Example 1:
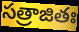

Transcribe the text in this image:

సత్రాజితః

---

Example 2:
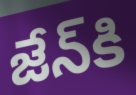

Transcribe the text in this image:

జేన్‌కి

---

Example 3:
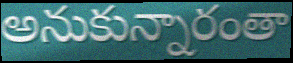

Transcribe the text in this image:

అనుకున్నారంతా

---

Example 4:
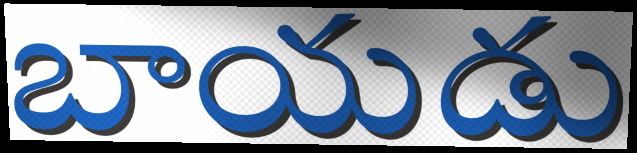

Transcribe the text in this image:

బాయడు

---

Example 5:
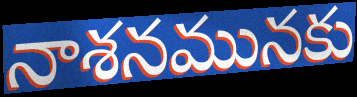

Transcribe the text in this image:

నాశనమునకు